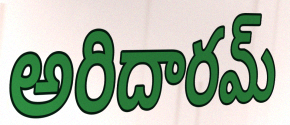
అరిదారమ్